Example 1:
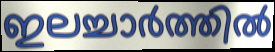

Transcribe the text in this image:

ഇലച്ചാർത്തിൽ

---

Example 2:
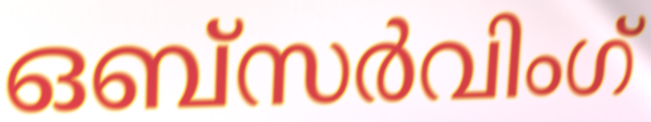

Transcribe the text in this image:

ഒബ്സർവിംഗ്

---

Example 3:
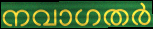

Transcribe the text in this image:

നവാഗതർ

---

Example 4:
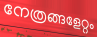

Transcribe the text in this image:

നേത്രങ്ങളേറ്റം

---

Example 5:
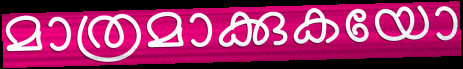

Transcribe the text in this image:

മാത്രമാക്കുകയോ